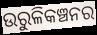
ଉରୁଳିକଞ୍ଚନର